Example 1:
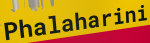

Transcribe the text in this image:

Phalaharini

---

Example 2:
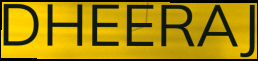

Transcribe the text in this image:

DHEERAJ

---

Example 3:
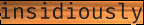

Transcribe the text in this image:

insidiously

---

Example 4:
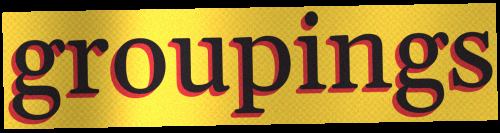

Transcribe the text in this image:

groupings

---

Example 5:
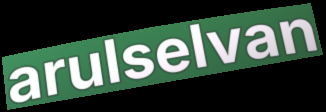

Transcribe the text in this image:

arulselvan